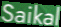
Saikal